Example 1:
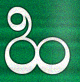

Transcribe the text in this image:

ಹಿ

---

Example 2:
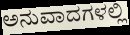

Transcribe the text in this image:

ಅನುವಾದಗಳಲ್ಲಿ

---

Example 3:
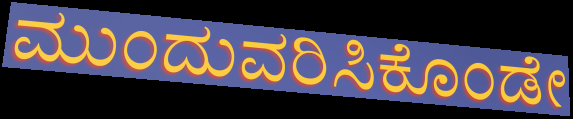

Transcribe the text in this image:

ಮುಂದುವರಿಸಿಕೊಂಡೇ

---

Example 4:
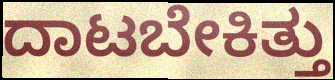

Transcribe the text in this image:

ದಾಟಬೇಕಿತ್ತು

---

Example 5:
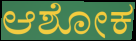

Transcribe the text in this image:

ಆಶೋಕ